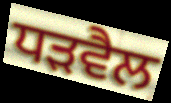
ਧੜਵੈਲ